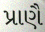
પ્રાણૈ